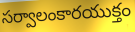
సర్వాలంకారయుక్తం